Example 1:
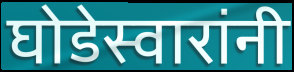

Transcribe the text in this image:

घोडेस्वारांनी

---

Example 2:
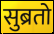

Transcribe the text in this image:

सुब्रतो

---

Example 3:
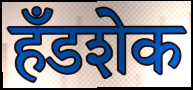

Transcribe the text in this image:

हँडशेक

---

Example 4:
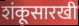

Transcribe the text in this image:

शंकूसारखी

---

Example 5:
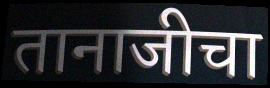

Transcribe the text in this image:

तानाजीचा